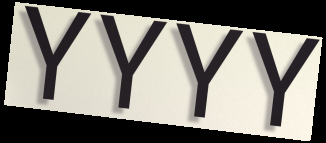
YYYY